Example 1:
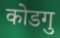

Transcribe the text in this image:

कोडगु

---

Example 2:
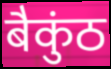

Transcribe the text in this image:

बैकुंठ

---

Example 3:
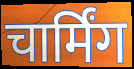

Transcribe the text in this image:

चार्मिंग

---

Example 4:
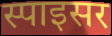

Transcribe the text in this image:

स्पाइसर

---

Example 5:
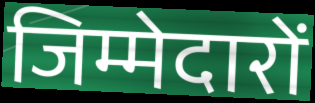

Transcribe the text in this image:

जिम्मेदारों